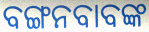
ବଙ୍ଗନବାବଙ୍କ